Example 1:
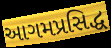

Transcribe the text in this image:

આગમપ્રસિદ્ધ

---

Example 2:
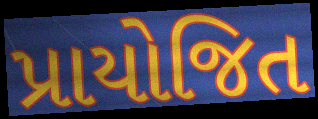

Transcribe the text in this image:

પ્રાયોજિત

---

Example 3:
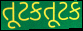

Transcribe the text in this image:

તૂટકતૂટક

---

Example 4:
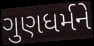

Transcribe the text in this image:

ગુણધર્મને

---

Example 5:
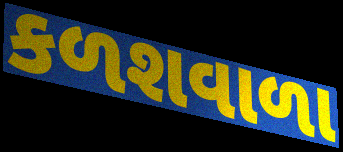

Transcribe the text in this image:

કળશવાળા